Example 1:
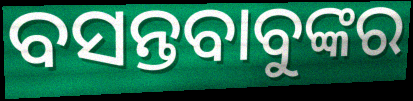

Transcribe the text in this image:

ବସନ୍ତବାବୁଙ୍କର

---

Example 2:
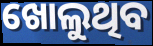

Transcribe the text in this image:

ଖୋଲୁଥିବ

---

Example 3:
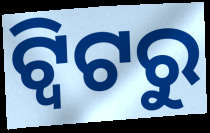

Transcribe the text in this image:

ଟ୍ବିଟରୁ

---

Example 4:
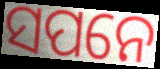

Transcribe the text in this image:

ସପନେ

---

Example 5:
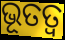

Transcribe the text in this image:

ଭୂତତ୍ୱ